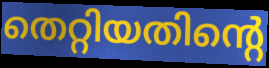
തെറ്റിയതിന്റെ